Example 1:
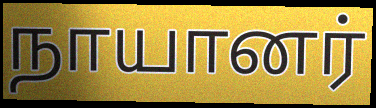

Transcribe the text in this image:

நாயானர்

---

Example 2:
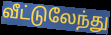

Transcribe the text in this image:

வீட்டுலேந்து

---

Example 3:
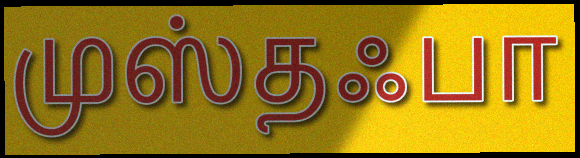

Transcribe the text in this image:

முஸ்தஃபா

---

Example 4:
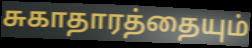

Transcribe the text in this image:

சுகாதாரத்தையும்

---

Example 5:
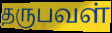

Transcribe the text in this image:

தருபவள்